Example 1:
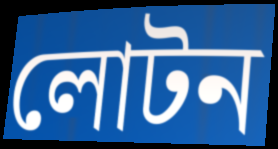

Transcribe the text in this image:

লোটন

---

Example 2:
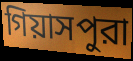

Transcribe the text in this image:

গিয়াসপুরা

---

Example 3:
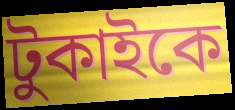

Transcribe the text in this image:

টুকাইকে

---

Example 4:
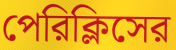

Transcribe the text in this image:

পেরিক্লিসের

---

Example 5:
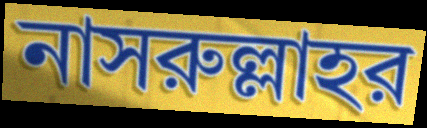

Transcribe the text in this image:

নাসরুল্লাহর